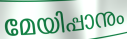
മേയിപ്പാനും